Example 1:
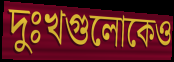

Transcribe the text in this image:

দুঃখগুলোকেও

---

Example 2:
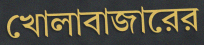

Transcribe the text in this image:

খোলাবাজারের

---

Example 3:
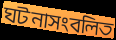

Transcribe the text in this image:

ঘটনাসংবলিত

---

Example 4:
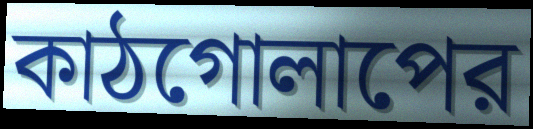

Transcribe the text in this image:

কাঠগোলাপের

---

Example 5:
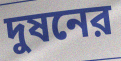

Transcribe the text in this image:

দুষনের